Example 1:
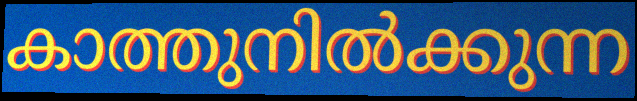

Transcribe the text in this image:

കാത്തുനിൽക്കുന്ന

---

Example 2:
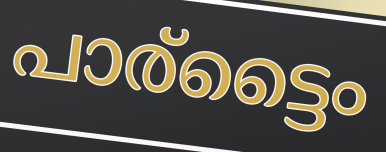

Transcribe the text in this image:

പാര്ട്ടൈം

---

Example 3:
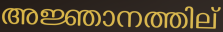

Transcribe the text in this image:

അജ്ഞാനത്തില്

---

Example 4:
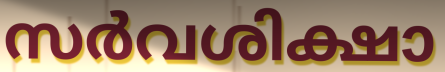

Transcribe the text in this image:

സർവശിക്ഷാ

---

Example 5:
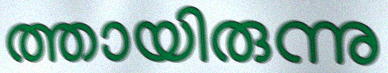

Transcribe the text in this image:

ത്തായിരുന്നു